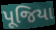
પૂજિયા